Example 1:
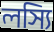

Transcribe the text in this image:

লস্যি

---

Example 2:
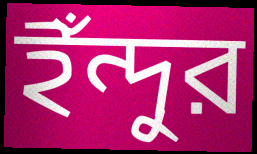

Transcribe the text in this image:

ইঁন্দুর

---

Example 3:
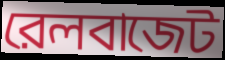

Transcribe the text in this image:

রেলবাজেট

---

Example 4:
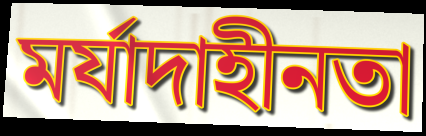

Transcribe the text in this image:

মর্যাদাহীনতা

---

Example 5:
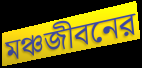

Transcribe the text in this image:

মঞ্চজীবনের